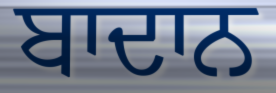
ਬਾਦਾਨ